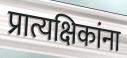
प्रात्यक्षिकांना